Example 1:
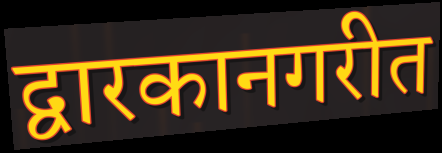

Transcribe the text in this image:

द्वारकानगरीत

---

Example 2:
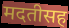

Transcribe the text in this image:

मदतीसह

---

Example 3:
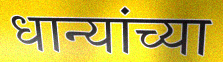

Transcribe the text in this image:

धान्यांच्या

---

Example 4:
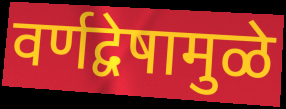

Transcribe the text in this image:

वर्णद्वेषामुळे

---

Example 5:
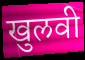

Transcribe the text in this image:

खुलवी